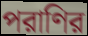
পরাণির